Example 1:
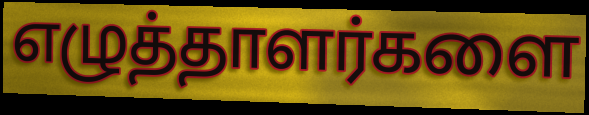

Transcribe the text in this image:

எழுத்தாளர்களை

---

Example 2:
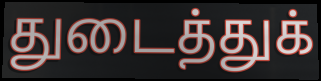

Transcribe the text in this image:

துடைத்துக்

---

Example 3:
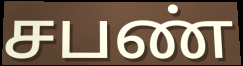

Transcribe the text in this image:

சபண்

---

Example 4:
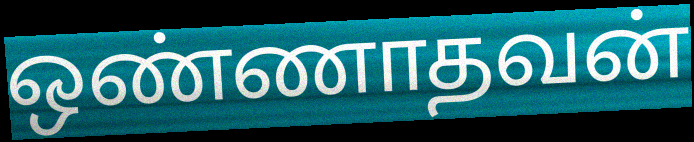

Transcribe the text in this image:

ஒண்ணாதவன்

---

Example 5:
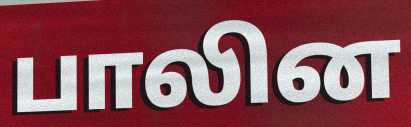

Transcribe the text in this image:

பாலின